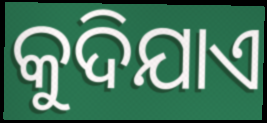
କୁଦିଯାଏ